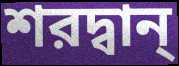
শরদ্বান্